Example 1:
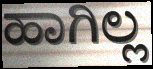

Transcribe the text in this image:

ಹಾಗಿಲ್ಲ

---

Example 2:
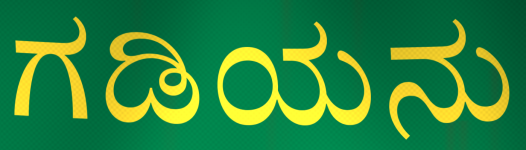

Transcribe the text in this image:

ಗಡಿಯನು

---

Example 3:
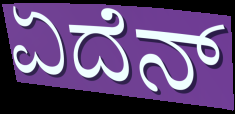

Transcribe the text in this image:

ಏದೆನ್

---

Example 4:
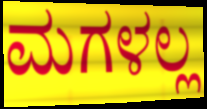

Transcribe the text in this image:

ಮಗಳಲ್ಲ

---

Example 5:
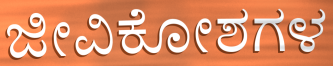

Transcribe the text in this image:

ಜೀವಿಕೋಶಗಳ